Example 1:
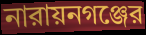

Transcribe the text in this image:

নারায়নগঞ্জের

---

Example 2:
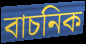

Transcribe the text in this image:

বাচনিক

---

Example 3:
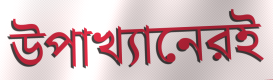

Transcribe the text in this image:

উপাখ্যানেরই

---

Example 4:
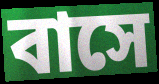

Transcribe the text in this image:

বাসে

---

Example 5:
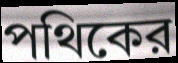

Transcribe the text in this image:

পথিকের